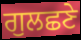
ਗੁਲਛਣੇ